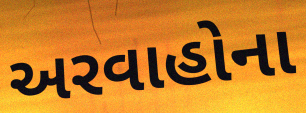
અરવાહોના